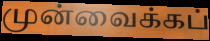
முன்வைக்கப்